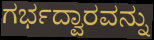
ಗರ್ಭದ್ವಾರವನ್ನು